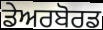
ਡੇਅਰਬੋਰਡ